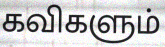
கவிகளும்